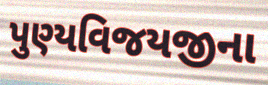
પુણ્યવિજયજીના